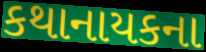
કથાનાયકના